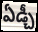
ఏడ్చీ